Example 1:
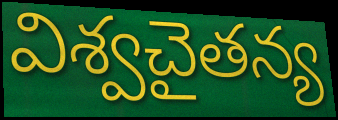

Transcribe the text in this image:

విశ్వచైతన్య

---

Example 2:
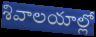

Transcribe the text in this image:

శివాలయాల్లో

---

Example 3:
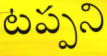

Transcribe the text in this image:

టప్పని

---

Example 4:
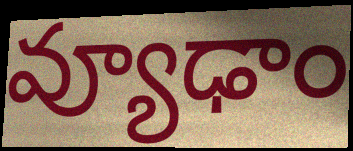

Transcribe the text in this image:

వ్యూఢాం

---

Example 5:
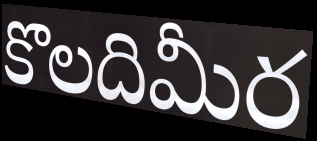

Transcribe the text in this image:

కొలదిమీర